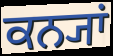
ਕਨ੍ਯਾਂ